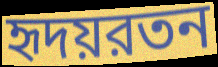
হৃদয়রতন